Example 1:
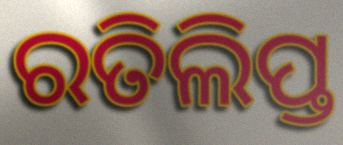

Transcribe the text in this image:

ରତିଲିପ୍ତ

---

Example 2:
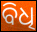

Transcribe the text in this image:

ବିଧି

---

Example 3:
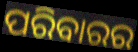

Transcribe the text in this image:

ପରିବାରର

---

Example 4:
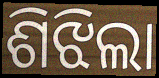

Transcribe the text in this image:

ଶିଝିଲା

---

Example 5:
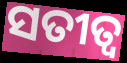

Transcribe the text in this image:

ସତୀତ୍ବ